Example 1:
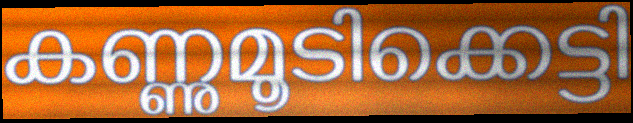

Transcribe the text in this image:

കണ്ണുമൂടിക്കെട്ടി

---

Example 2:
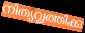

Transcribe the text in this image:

നിത്യവൃത്തിക്കു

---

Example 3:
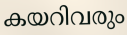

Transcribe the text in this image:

കയറിവരും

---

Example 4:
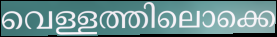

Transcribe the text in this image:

വെള്ളത്തിലൊക്കെ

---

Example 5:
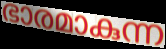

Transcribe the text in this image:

ഭാരമാകുന്ന